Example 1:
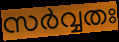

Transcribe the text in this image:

സർവ്വതഃ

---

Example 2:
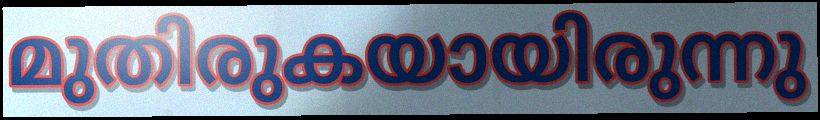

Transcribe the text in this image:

മുതിരുകയായിരുന്നു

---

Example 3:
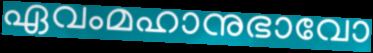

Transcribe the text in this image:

ഏവംമഹാനുഭാവോ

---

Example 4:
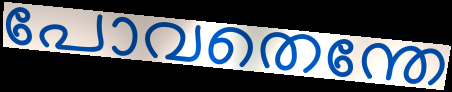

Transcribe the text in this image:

പോവതെന്തേ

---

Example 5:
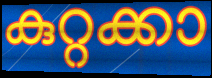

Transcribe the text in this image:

കുറ്റക്കാ